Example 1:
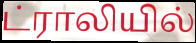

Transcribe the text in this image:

ட்ராலியில்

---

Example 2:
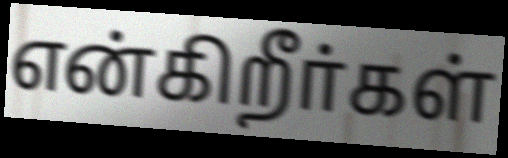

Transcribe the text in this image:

என்கிறீர்கள்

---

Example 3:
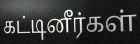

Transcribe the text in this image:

கட்டினீர்கள்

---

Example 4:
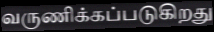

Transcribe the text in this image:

வருணிக்கப்படுகிறது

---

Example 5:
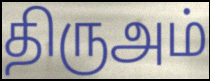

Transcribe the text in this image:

திருஅம்